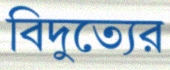
বিদুত্যের